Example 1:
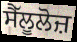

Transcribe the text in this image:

ਸੈੱਲੂਲੋਜ਼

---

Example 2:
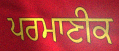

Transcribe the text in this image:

ਪਰਮਾਣੀਕ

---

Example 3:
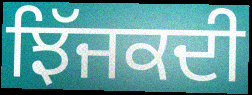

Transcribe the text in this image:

ਝਿੱਜਕਦੀ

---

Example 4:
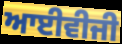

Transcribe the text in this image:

ਆਈਵੀਜੀ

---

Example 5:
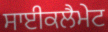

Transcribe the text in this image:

ਸਾਈਕਲੈਮੇਟ